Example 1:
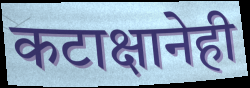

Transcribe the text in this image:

कटाक्षानेही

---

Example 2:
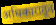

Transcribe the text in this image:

अधिकारातून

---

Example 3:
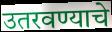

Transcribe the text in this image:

उतरवण्याचे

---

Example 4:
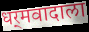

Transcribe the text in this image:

धर्मवादाला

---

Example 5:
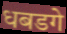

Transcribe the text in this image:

धबडगे